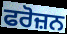
ਫਰੋਜ਼ਨ